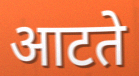
आटते